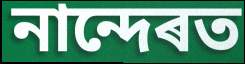
নান্দেৰত